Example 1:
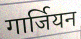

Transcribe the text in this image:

गार्जियन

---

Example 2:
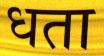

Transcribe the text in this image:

धता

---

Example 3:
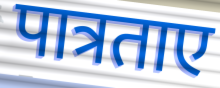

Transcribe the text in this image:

पात्रताए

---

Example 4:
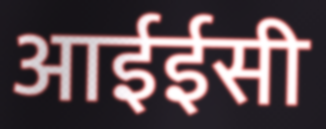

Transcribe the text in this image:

आईईसी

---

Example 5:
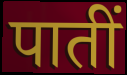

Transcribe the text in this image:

पातीं